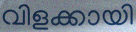
വിളക്കായി